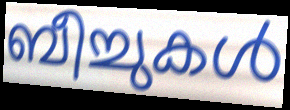
ബീച്ചുകൾ